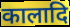
कालादि